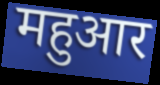
महुआर